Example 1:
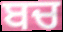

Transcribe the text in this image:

ਬਚ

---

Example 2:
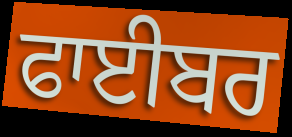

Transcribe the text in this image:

ਫਾਈਬਰ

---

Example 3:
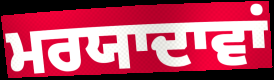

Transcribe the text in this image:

ਮਰਯਾਦਾਵਾਂ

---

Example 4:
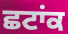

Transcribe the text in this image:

ਛਟਾਂਕ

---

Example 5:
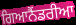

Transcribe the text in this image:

ਗਿਆਨੈਂਡਰੀਆ